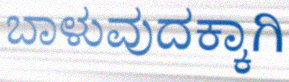
ಬಾಳುವುದಕ್ಕಾಗಿ